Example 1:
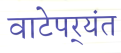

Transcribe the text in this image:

वाटेपर्यंत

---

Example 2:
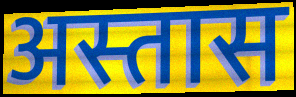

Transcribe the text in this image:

अस्तास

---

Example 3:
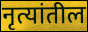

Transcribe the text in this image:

नृत्यांतील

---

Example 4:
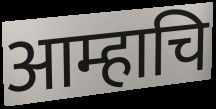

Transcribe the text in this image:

आम्हाचि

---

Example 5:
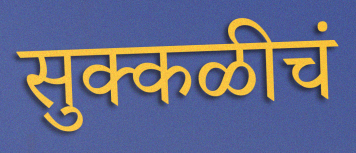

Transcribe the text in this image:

सुक्कळीचं